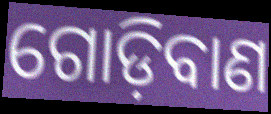
ଗୋଡ଼ିବାଣ